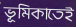
ভূমিকাতেই